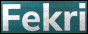
Fekri